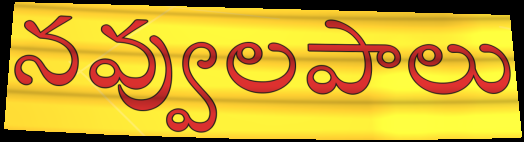
నవ్వులపాలు